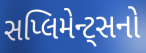
સપ્લિમેન્ટ્સનો